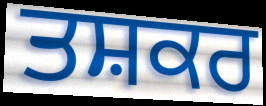
ਤਸ਼ਕਰ